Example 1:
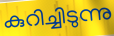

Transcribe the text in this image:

കുറിച്ചിടുന്നു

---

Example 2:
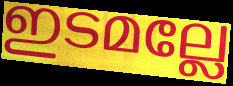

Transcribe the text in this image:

ഇടമല്ലേ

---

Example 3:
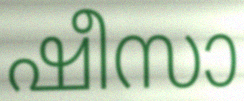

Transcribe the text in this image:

ഷീസാ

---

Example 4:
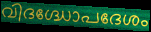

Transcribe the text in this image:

വിദഗ്ദ്ധോപദേശം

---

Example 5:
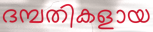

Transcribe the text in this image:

ദമ്പതികളായ